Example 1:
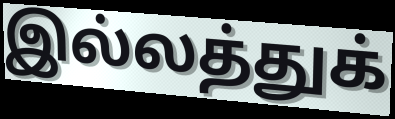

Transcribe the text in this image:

இல்லத்துக்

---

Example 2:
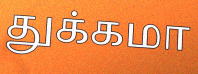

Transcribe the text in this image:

துக்கமா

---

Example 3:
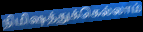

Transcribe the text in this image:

நிமிஷத்துக்கெல்லாம்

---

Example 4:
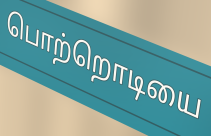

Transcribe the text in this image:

பொற்றொடியை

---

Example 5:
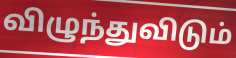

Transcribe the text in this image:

விழுந்துவிடும்